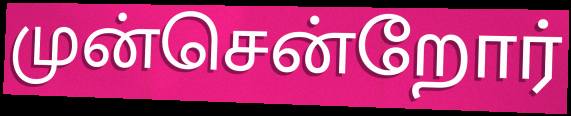
முன்சென்றோர்